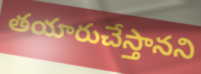
తయారుచేస్తానని